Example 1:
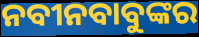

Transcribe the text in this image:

ନବୀନବାବୁଙ୍କର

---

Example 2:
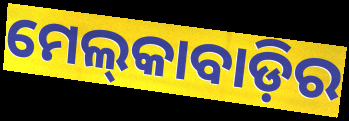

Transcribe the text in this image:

ମେଲ୍‌କାବାଡ଼ିର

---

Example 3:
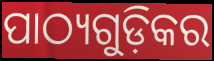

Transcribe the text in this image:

ପାଠ୍ୟଗୁଡ଼ିକର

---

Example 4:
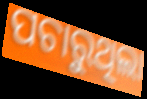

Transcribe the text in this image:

ପଚାରୁଥିଲା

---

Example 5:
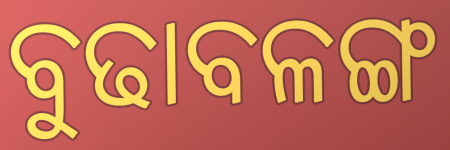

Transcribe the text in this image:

ବୁଢାବଳଙ୍ଗ